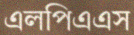
এলপিএএস